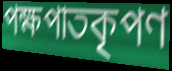
পক্ষপাতকৃপণ